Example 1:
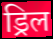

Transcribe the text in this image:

ड्रिल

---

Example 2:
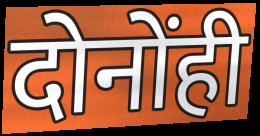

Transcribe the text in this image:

दोनोंही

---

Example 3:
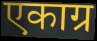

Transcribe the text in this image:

एकाग्र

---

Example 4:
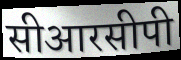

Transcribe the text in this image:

सीआरसीपी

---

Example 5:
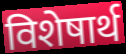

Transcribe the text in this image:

विशेषार्थ